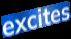
excites